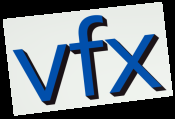
vfx